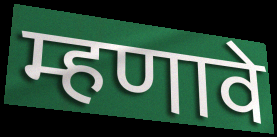
म्हणावे